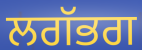
ਲਗੱਭਗ